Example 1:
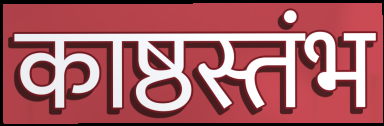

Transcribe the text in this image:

काष्ठस्तंभ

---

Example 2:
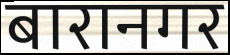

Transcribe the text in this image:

बारानगर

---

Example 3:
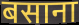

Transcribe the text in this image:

बसाना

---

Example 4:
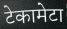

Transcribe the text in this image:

टेकामेटा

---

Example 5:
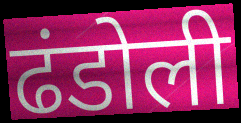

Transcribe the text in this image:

ढंडोली